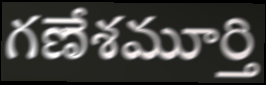
గణేశమూర్తి